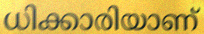
ധിക്കാരിയാണ്